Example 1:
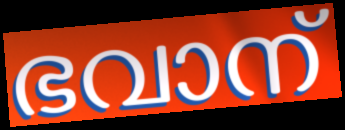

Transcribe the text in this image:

ഭവാന്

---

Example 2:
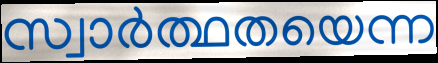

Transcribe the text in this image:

സ്വാർത്ഥതയെന്ന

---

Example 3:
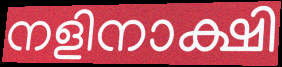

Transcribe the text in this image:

നളിനാക്ഷി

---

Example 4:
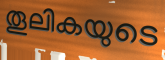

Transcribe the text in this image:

തൂലികയുടെ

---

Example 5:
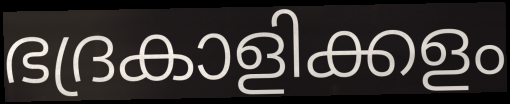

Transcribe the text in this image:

ഭദ്രകാളിക്കളം